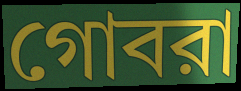
গোবরা